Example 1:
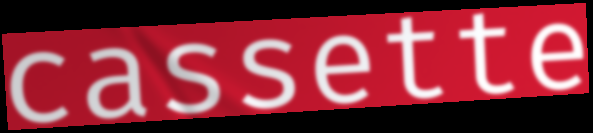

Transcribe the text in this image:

cassette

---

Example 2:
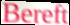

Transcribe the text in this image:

Bereft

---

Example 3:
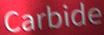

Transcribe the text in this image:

Carbide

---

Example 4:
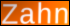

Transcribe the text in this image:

Zahn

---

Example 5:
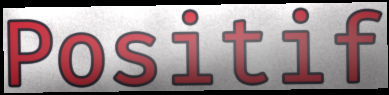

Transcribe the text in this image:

Positif